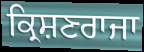
ਕ੍ਰਿਸ਼ਣਰਾਜਾ